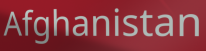
Afghanistan